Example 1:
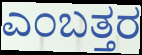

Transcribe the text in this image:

ಎಂಬತ್ತರ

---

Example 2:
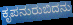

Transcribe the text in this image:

ಕೃಪನುರುಬಿದನು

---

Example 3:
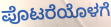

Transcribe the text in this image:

ಪೊಟರೆಯೊಳಗೆ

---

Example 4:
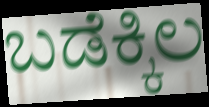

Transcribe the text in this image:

ಬಡೆಕ್ಕಿಲ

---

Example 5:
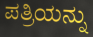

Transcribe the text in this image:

ಪತ್ರಿಯನ್ನು